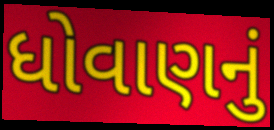
ધોવાણનું